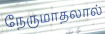
நேருமாதலால்